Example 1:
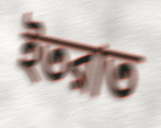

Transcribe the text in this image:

ইতরাত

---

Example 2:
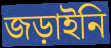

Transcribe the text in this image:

জড়াইনি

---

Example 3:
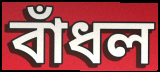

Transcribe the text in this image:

বাঁধল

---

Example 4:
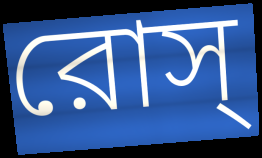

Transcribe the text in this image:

রোস্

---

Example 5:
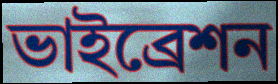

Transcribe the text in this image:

ভাইব্রেশন